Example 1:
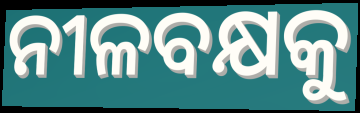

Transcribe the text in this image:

ନୀଳବକ୍ଷକୁ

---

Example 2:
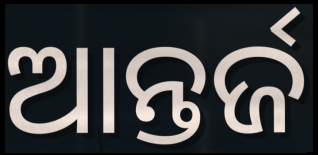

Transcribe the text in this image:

ଆନ୍ତର୍ଜ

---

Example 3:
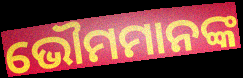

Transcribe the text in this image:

ଭୌମମାନଙ୍କ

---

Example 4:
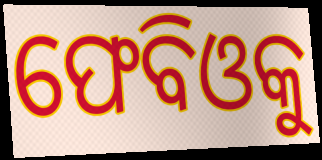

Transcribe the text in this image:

ଫେବିଓକୁ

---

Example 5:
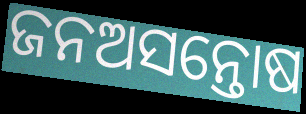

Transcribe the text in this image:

ଜନଅସନ୍ତୋଷ